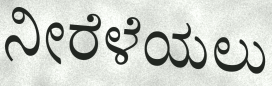
ನೀರೆಳೆಯಲು